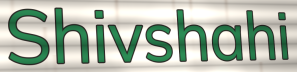
Shivshahi